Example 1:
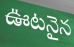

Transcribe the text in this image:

ఊటనైన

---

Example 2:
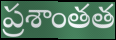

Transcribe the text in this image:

ప్రశాంతత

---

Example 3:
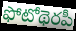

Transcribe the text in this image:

ఫోటోథెరపీ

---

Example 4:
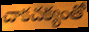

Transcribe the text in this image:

చాకచక్యంతో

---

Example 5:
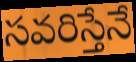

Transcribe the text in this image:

సవరిస్తేనే